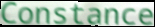
Constance